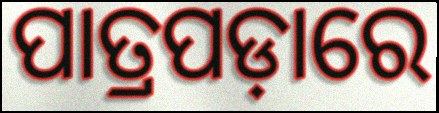
ପାତ୍ରପଡ଼ାରେ